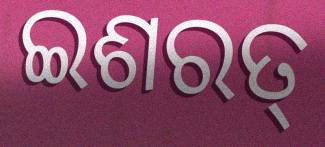
ଇଶରତ୍